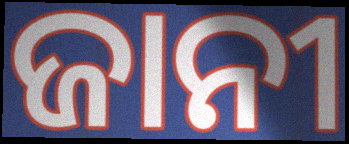
ଜାନୀ